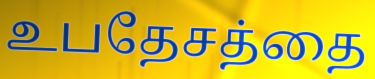
உபதேசத்தை